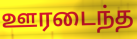
ஊரடைந்த